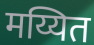
मय्यित